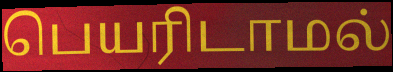
பெயரிடாமல்